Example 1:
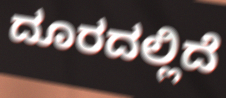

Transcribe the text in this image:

ದೂರದಲ್ಲಿದೆ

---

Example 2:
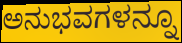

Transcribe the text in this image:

ಅನುಭವಗಳನ್ನೂ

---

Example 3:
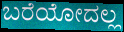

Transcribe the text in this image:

ಬರೆಯೋದಲ್ಲ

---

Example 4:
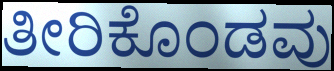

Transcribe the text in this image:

ತೀರಿಕೊಂಡವು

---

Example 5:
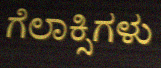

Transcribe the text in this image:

ಗೆಲಾಕ್ಸಿಗಳು